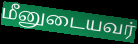
மீனுடையவர்